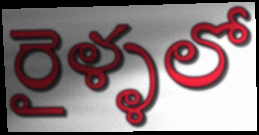
రైళ్ళలో